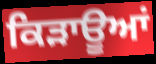
ਕਿੜਾਊਆਂ